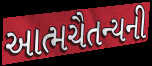
આત્મચૈતન્યની